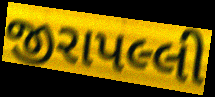
જીરાપલ્લી